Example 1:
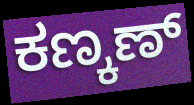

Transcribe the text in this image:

ಕಣ್ಕಣ್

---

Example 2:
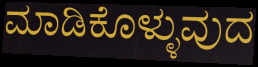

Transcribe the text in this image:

ಮಾಡಿಕೊಳ್ಳುವುದ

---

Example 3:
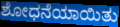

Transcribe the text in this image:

ಶೋಧನೆಯಾಯಿತು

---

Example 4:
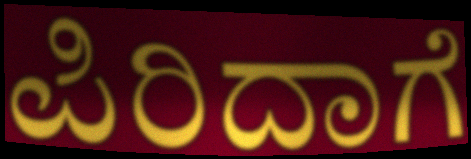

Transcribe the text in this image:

ಪಿರಿದಾಗೆ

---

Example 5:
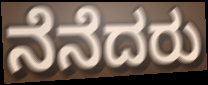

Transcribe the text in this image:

ನೆನೆದರು